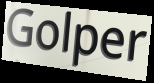
Golper